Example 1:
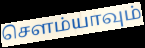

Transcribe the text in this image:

சௌம்யாவும்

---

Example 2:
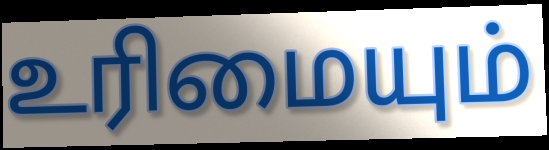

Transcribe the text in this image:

உரிமையும்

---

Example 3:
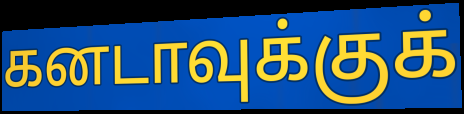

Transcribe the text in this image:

கனடாவுக்குக்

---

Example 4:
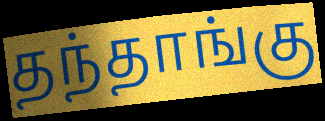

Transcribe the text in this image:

தந்தாங்கு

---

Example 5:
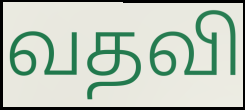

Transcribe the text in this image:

வதவி